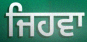
ਜਿਹਵਾ